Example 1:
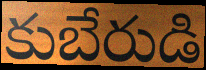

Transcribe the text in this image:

కుబేరుడి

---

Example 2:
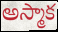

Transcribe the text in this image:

అస్మాక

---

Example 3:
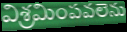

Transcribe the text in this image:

విశ్రమింపవలెను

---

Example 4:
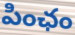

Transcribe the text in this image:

పింఛం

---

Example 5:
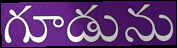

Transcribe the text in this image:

గూడును